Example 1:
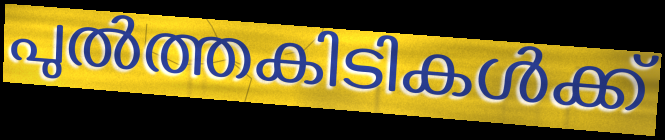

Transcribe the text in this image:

പുൽത്തകിടികൾക്ക്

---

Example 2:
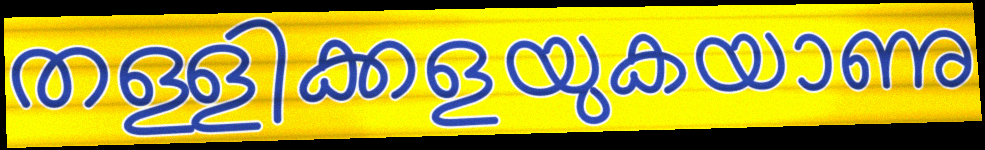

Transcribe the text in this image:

തള്ളിക്കളയുകയാണു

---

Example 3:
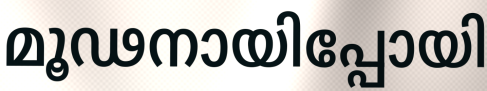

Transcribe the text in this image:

മൂഢനായിപ്പോയി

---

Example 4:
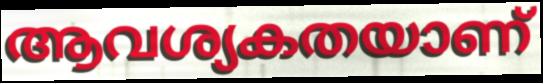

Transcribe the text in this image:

ആവശ്യകതയാണ്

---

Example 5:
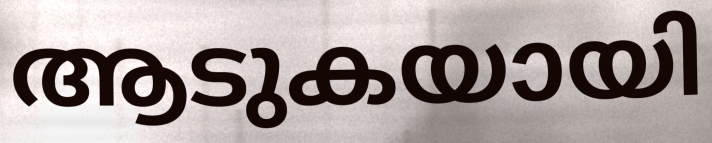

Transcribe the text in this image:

ആടുകയായി